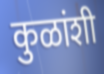
कुळांशी